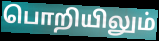
பொறியிலும்